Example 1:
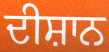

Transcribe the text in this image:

ਦੀਸ਼ਾਨ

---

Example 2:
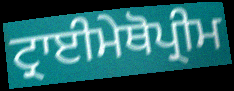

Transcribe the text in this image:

ਟ੍ਰਾਈਮੇਥੋਪ੍ਰੀਮ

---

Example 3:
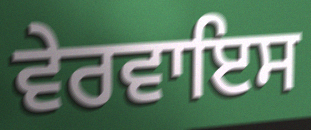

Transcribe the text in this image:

ਵੇਰਵਾਇਸ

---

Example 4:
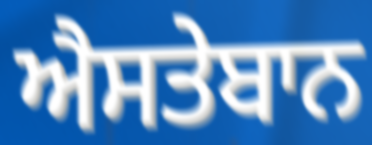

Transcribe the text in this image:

ਐਸਤੇਬਾਨ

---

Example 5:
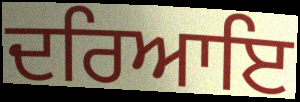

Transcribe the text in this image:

ਦਰਿਆਇ